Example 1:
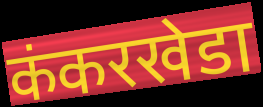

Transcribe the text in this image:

कंकरखेडा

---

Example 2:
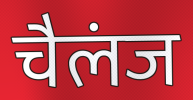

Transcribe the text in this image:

चैलंज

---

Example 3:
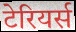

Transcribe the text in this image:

टेरियर्स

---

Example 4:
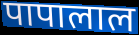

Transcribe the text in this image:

पापालाल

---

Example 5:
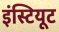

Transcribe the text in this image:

इंस्टियूट